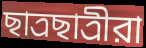
ছাত্রছাত্রীরা